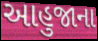
આહુજાના